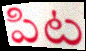
పిట